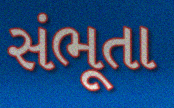
સંભૂતા